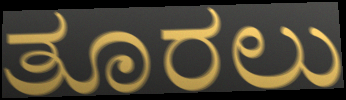
ತೂರಲು